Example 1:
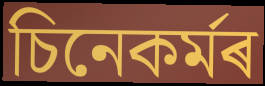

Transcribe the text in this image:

চিনেকৰ্মৰ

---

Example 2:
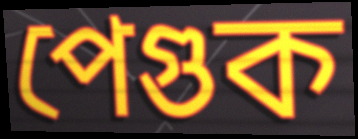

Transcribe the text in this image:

পেগুক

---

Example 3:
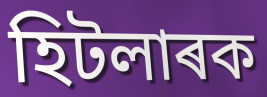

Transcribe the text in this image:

হিটলাৰক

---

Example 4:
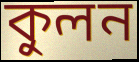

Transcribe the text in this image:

কুলন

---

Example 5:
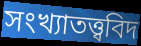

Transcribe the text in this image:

সংখ্যাতত্ত্ববিদ